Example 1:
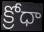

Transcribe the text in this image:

క్రోధా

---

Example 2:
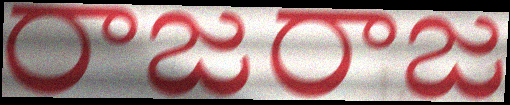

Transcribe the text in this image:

రాజరాజ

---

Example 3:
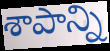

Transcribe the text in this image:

శాపాన్ని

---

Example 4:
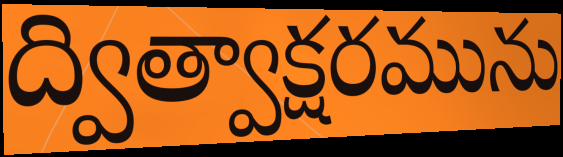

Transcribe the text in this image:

ద్విత్వాక్షరమును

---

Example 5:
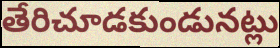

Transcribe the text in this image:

తేరిచూడకుండునట్లు